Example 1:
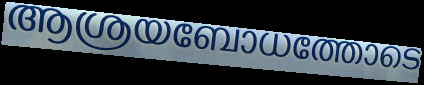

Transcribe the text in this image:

ആശ്രയബോധത്തോടെ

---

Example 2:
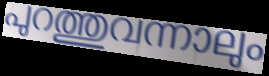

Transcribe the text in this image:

പുറത്തുവന്നാലും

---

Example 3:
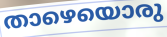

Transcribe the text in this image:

താഴെയൊരു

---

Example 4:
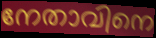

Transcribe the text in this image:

നേതാവിനെ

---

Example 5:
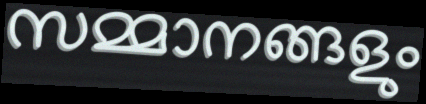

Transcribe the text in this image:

സമ്മാനങ്ങളും